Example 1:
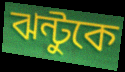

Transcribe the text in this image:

ঝন্টুকে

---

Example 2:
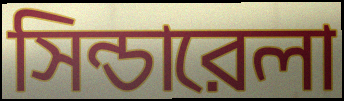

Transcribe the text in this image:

সিন্ডারেলা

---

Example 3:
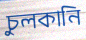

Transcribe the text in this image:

চুলকানি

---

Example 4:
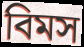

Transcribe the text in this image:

বিমস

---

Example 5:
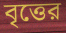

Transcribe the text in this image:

বৃত্তের